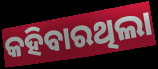
କହିବାରଥିଲା